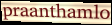
praanthamlo